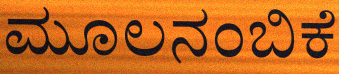
ಮೂಲನಂಬಿಕೆ